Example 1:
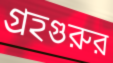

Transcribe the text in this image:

গ্রহগুরুর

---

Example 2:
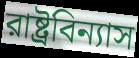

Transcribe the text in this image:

রাষ্ট্রবিন্যাস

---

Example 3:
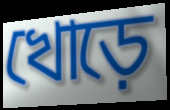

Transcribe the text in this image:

খোড়ে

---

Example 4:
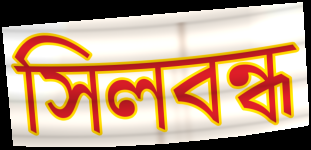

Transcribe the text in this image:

সিলবন্ধ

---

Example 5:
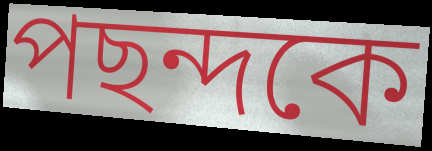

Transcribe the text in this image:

পছন্দকে